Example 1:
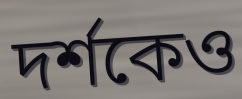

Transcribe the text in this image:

দৰ্শকেও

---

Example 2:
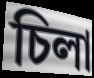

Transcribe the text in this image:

চিলা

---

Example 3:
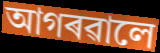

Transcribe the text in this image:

আগৰৱালে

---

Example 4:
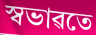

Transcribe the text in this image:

স্বভাৱতে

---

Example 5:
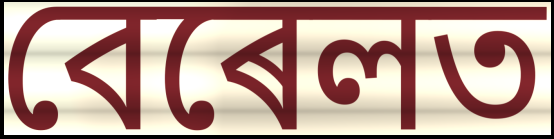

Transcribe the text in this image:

বেৰেলত